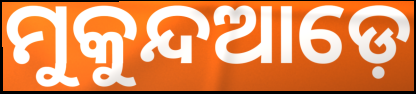
ମୁକୁନ୍ଦଆଡ଼େ